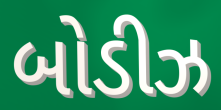
બોડીઝ